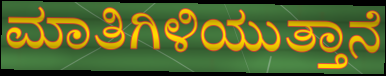
ಮಾತಿಗಿಳಿಯುತ್ತಾನೆ